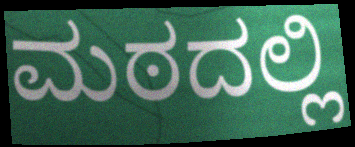
ಮಠದಲ್ಲಿ